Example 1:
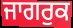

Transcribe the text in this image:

ਜਾਗਰੁਕ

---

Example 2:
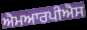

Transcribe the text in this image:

ਐਮਆਰਪੀਐਸ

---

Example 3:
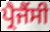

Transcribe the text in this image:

ਪ੍ਰੈਜੈਂਸੀ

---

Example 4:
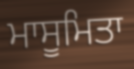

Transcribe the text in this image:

ਮਾਸੂਮਿਤਾ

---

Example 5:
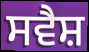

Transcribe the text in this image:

ਸਵੈਸ਼